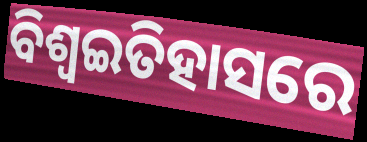
ବିଶ୍ଵଇତିହାସରେ